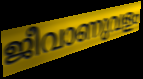
ജീവാണുവളം